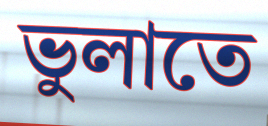
ভুলাতে